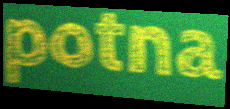
potna